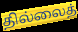
தில்லைத்